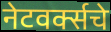
नेटवर्क्सचे